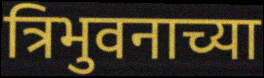
त्रिभुवनाच्या